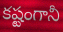
కష్టంగానీ